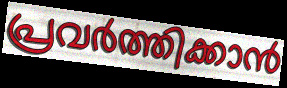
പ്രവർത്തിക്കാൻ